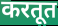
करतूत